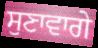
ਸੁਣਾਵਾਗੇ